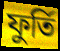
ফুর্তি